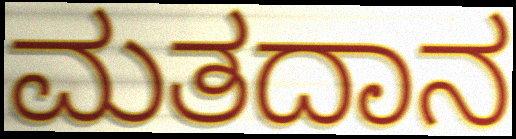
ಮತದಾನ